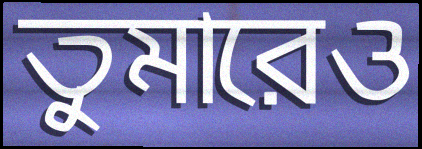
তুমারেও